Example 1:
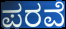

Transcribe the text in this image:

ಪರವೆ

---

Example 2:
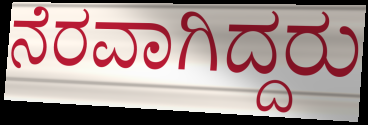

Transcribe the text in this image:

ನೆರವಾಗಿದ್ದರು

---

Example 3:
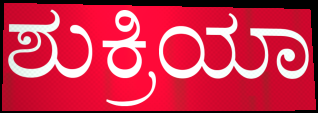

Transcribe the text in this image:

ಶುಕ್ರಿಯಾ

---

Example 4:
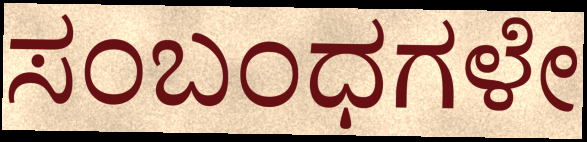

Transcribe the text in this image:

ಸಂಬಂಧಗಳೇ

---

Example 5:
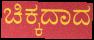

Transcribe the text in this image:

ಚಿಕ್ಕದಾದ